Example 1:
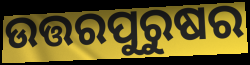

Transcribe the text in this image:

ଉତ୍ତରପୁରୁଷର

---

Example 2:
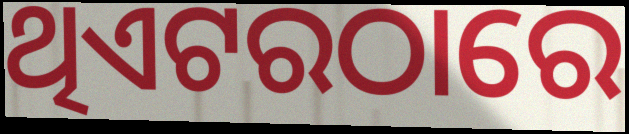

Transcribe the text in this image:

ଥିଏଟରଠାରେ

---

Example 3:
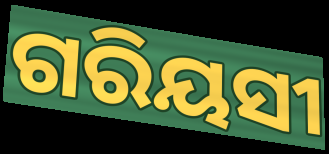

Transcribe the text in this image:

ଗରିୟସୀ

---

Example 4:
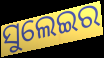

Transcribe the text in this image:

ସୁଲେଇର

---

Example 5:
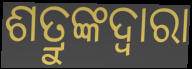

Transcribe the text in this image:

ଶତ୍ରୁଙ୍କଦ୍ୱାରା